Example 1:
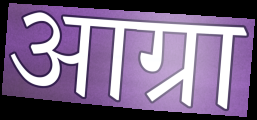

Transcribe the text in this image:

आग्रा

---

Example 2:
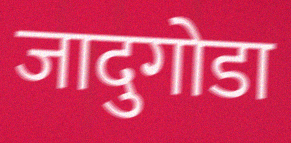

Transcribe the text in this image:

जादुगोडा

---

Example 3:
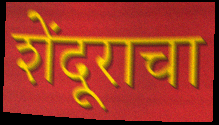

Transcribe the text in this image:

शेंदूराचा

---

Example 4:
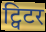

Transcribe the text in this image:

ट्विटर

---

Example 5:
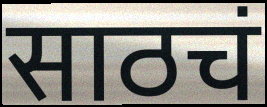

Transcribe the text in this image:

साठचं